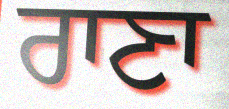
ਰਾਣਾ